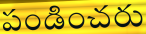
పండించరు